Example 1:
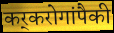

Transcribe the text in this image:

कर्करोगांपैकी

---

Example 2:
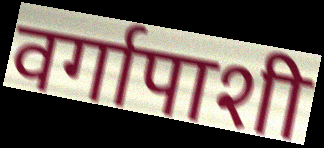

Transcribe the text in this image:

वर्गापाशी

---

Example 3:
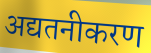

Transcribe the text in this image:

अद्यतनीकरण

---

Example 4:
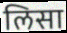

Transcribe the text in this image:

लिसा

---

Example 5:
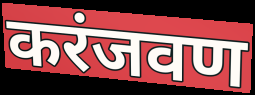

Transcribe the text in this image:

करंजवण